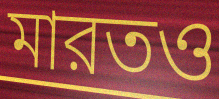
মারতও